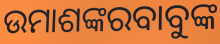
ଉମାଶଙ୍କରବାବୁଙ୍କ